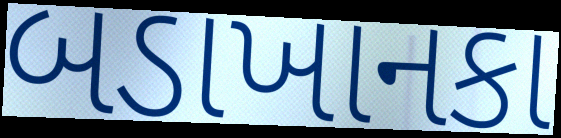
બડાખાનકા